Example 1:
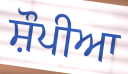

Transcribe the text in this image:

ਸ਼ੌਪੀਆ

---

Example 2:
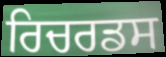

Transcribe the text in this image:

ਰਿਚਰਡਸ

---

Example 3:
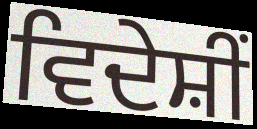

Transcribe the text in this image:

ਵਿਦੇਸ਼ੀਂ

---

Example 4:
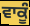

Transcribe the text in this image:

ਵਾਕੂੰ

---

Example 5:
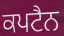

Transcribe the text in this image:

ਕਪਟੈਨ